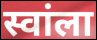
स्वांला